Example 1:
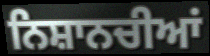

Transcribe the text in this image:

ਨਿਸ਼ਾਨਚੀਆਂ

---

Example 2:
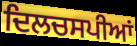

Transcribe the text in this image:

ਦਿਲਚਸਪੀਆਂ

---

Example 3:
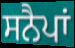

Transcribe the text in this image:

ਸਨੈਪਾਂ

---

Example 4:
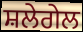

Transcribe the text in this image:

ਸ਼ਲੇਗੇਲ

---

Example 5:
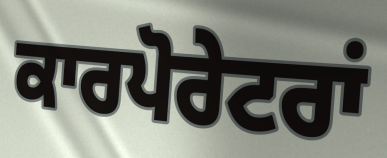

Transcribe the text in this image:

ਕਾਰਪੋਰੇਟਰਾਂ